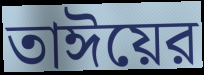
তাঈয়ের